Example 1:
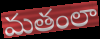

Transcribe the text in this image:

మతంలా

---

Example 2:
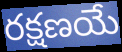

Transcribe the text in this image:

రక్షణయే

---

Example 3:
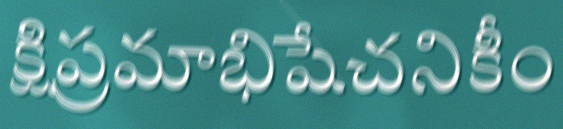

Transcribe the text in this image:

క్షిప్రమాభిషేచనికీం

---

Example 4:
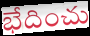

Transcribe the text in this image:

భేదించు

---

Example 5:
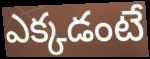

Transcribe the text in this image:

ఎక్కడంటే